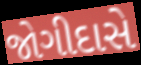
જોગીદાસે